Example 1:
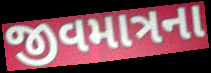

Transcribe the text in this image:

જીવમાત્રના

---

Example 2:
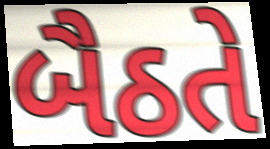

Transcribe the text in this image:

બૈઠતે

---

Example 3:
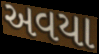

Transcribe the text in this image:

અવયા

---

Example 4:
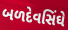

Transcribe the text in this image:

બળદેવસિંઘે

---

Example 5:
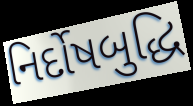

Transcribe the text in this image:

નિર્દોષબુદ્ધિ